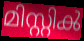
മിസ്റ്റിൿ